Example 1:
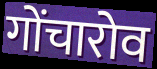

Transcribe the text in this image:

गोंचारोव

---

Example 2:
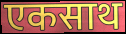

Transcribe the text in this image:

एकसाथ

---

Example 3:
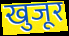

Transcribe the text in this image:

खुजूर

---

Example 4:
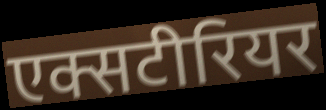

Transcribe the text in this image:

एक्सटीरियर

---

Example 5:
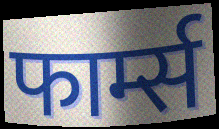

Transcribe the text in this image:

फार्म्स